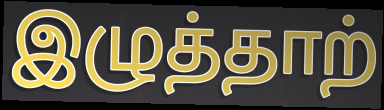
இழுத்தாற்